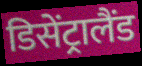
डिसेंट्रालैंड